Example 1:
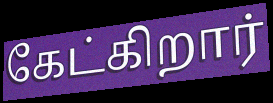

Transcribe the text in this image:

கேட்கிறார்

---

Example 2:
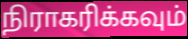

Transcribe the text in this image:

நிராகரிக்கவும்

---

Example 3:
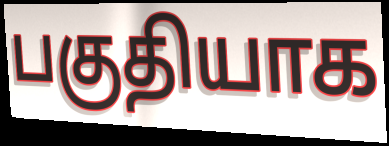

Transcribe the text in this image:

பகுதியாக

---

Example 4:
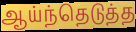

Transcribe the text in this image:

ஆய்ந்தெடுத்த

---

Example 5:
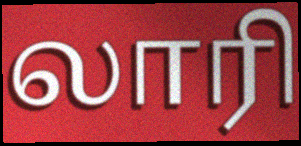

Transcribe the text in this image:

லாரி